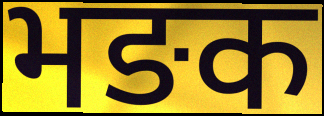
भङक